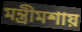
মন্ত্রীমশায়